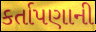
કર્તાપણાની